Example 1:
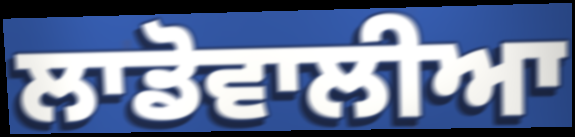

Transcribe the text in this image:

ਲਾਡੋਵਾਲੀਆ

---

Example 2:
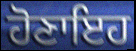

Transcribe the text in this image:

ਹੋਣਾਇਹ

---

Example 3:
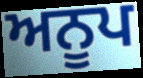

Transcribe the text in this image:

ਅਨੂਪ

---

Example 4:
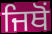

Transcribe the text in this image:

ਜਿਥੋਂ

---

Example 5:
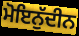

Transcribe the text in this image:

ਮੋਇਨੁੱਦੀਨ